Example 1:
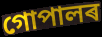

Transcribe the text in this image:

গোপালৰ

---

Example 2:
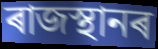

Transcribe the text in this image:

ৰাজস্থানৰ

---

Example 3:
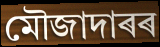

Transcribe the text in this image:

মৌজাদাৰৰ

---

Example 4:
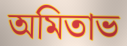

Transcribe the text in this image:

অমিতাভ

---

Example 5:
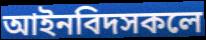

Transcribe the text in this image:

আইনবিদসকলে